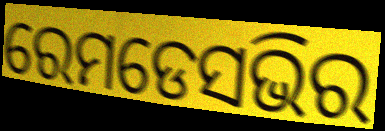
ରେମଡେସଭିର